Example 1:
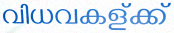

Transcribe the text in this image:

വിധവകള്ക്ക്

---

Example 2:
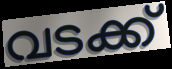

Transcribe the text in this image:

വടക്ക്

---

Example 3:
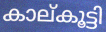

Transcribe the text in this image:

കാല്കൂട്ടി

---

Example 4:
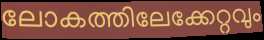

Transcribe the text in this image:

ലോകത്തിലേക്കേറ്റവും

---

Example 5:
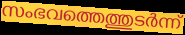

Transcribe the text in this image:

സംഭവത്തെത്തുടർന്ന്